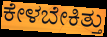
ಕೇಳಬೇಕಿತ್ತು